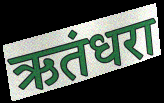
ऋतंधरा